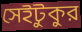
সেইটুকুর